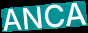
ANCA